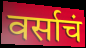
वर्साचं